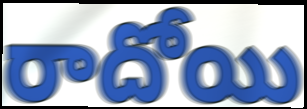
రాదోయి